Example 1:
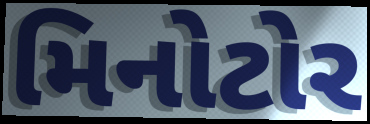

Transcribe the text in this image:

મિનોટોર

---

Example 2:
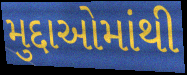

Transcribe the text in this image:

મુદ્દાઓમાંથી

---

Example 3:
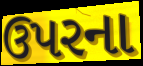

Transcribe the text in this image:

ઉપરના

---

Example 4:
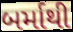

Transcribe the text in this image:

બર્માથી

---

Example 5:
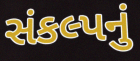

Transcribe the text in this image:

સંકલ્પનું